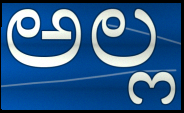
ಅಲ್ಲ